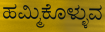
ಹಮ್ಮಿಕೊಳ್ಳುವ